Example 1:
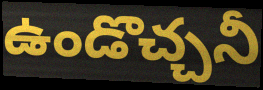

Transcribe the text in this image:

ఉండొచ్చనీ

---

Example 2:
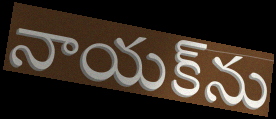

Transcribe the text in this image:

నాయక్‌ను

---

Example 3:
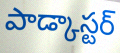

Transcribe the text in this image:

పాడ్కాస్టర్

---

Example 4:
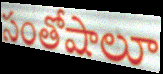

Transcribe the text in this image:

సంతోషాలూ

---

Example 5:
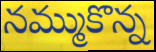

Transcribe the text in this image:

నమ్ముకొన్న